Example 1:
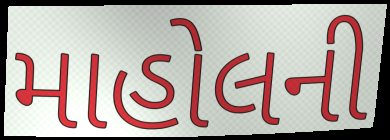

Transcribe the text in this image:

માહોલની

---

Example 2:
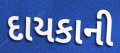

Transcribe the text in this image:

દાયકાની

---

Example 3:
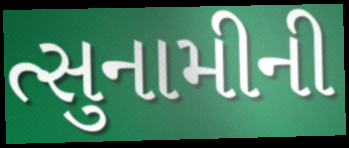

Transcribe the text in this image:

ત્સુનામીની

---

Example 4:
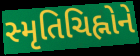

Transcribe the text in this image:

સ્મૃતિચિહ્નોને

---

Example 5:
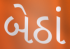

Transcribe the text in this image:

બેઠાં